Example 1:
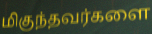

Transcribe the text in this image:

மிகுந்தவர்களை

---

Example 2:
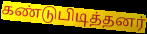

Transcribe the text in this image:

கண்டுபிடித்தனர்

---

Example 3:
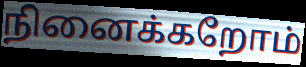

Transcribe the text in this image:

நினைக்கறோம்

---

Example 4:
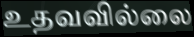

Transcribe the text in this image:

உதவவில்லை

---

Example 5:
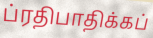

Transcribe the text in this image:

ப்ரதிபாதிக்கப்